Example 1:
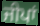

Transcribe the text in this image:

ਜੀਪਾਂ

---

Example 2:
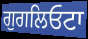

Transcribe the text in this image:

ਗੁਗਲਿਓਟਾ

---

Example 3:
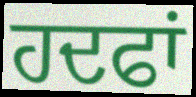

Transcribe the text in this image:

ਹਦਫਾਂ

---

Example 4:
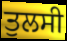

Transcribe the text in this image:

ਤੁਲਸੀ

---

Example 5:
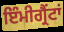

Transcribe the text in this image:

ਇੰਮੀਗ੍ਰੈਂਟਾਂ